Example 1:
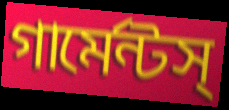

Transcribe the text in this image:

গার্মেন্টস্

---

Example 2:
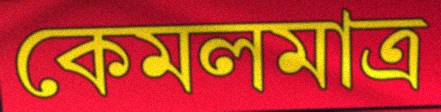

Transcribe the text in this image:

কেমলমাত্র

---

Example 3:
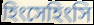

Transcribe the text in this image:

হিংসেহিংসি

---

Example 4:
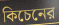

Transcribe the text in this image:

কিচেনের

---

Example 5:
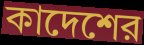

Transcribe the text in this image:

কাদেশের